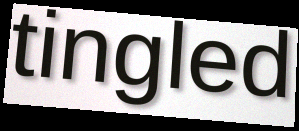
tingled